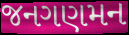
જનગણમન